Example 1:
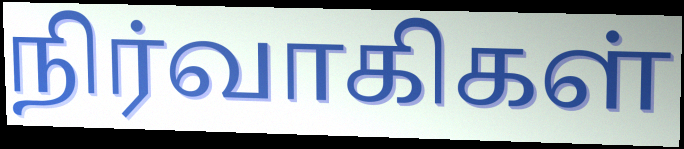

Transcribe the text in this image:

நிர்வாகிகள்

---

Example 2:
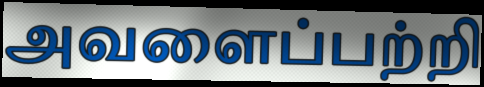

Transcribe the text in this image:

அவளைப்பற்றி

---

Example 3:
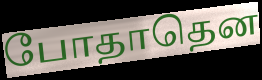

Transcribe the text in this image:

போதாதென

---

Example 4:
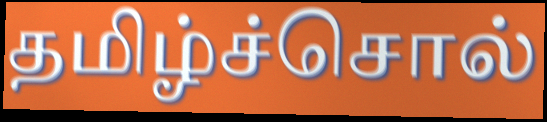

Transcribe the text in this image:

தமிழ்ச்சொல்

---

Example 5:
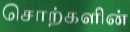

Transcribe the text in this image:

சொற்களின்